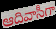
ఆదివాసీగా